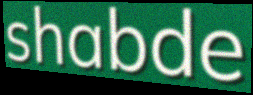
shabde